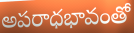
అపరాధభావంతో